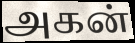
அகன்